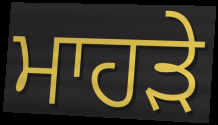
ਮਾਹੜੇ